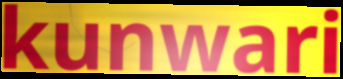
kunwari